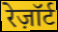
रेज़ॉर्ट